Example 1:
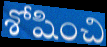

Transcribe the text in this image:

శోషించి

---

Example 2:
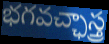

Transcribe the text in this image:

భగవచ్ఛాస్త్ర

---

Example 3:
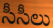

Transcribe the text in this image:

సీసీలు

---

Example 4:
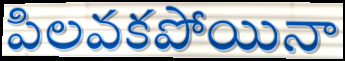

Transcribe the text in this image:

పిలవకపోయినా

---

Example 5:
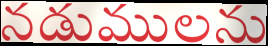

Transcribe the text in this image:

నడుములను